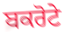
ਬਕਰੋਟੇ